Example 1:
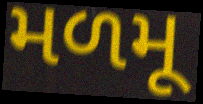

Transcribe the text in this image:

મળમૂ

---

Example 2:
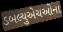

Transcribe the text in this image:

ડબલ્યુએચઓના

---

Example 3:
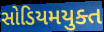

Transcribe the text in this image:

સોડિયમયુક્ત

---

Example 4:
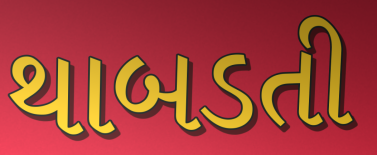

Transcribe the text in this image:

થાબડતી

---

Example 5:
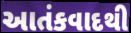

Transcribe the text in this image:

આતંકવાદથી